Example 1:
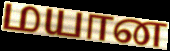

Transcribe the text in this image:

மயான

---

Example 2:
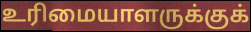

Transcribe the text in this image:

உரிமையாளருக்குக்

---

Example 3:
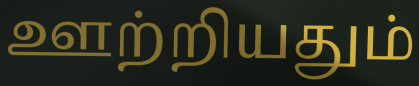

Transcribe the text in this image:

ஊற்றியதும்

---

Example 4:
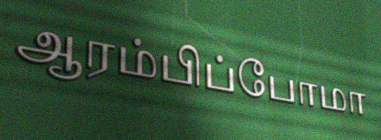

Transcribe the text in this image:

ஆரம்பிப்போமா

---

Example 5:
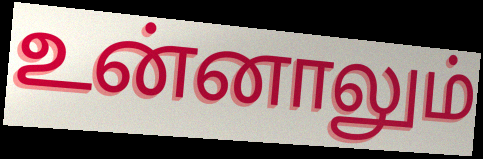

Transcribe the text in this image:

உன்னாலும்